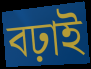
বঢ়াই